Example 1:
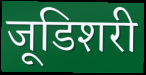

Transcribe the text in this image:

जूडिशरी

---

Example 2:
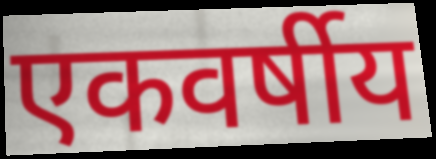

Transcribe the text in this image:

एकवर्षीय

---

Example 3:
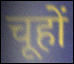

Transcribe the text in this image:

चूहों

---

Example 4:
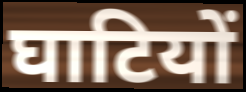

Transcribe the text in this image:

घाटियों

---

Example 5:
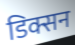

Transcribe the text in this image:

डिक्सन